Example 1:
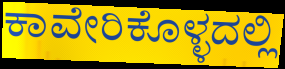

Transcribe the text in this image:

ಕಾವೇರಿಕೊಳ್ಳದಲ್ಲಿ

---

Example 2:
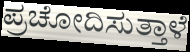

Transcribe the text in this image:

ಪ್ರಚೋದಿಸುತ್ತಾಳೆ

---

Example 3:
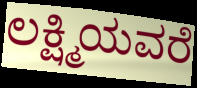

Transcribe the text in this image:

ಲಕ್ಷ್ಮಿಯವರೆ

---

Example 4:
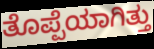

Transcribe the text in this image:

ತೊಪ್ಪೆಯಾಗಿತ್ತು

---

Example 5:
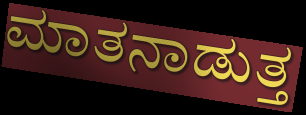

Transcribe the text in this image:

ಮಾತನಾಡುತ್ತ